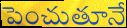
పెంచుతూనే